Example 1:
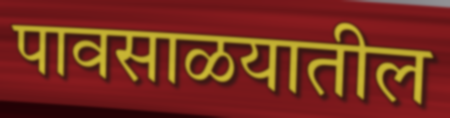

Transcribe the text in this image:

पावसाळयातील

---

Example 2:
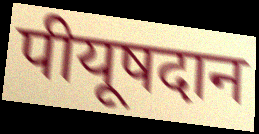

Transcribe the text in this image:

पीयूषदान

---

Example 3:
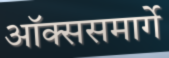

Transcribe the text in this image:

ऑक्ससमार्गे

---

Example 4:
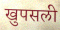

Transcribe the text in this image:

खुपसली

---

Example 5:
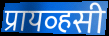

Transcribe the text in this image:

प्रायव्हसी